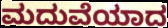
ಮದುವೆಯಾದ